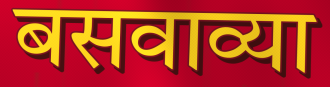
बसवाव्या